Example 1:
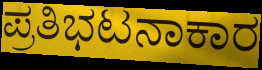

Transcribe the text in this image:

ಪ್ರತಿಭಟನಾಕಾರ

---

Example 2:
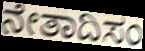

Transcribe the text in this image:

ನೇತಾದಿಸಂ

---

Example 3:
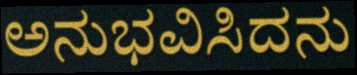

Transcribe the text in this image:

ಅನುಭವಿಸಿದನು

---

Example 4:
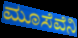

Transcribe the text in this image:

ಮೂಸೆವೆನಿ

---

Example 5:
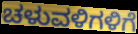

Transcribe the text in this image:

ಚಳುವಳಿಗಳಿಗೆ